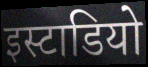
इस्टाडियो